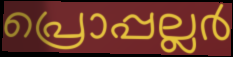
പ്രൊപ്പല്ലർ